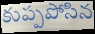
కుప్పపోసిన